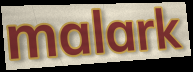
malark